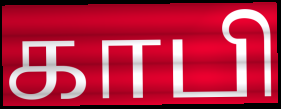
காபி